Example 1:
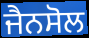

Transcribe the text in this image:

ਜੈਨਸੋਲ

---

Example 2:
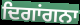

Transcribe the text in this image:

ਦਿਗਾਂਗਨਾ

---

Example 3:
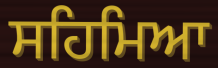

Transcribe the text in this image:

ਸਹਿਮਿਆ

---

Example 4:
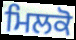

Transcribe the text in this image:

ਮਿਲਕੋ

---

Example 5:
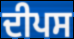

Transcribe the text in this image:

ਦੀਪਸ